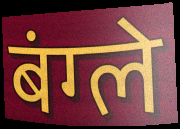
बंग्ले